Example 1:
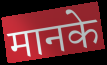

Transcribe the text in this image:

मानके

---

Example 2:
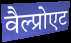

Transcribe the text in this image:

वैल्प्रोएट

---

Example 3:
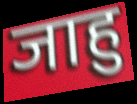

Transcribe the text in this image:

जाहु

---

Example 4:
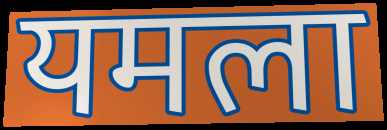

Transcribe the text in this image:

यमला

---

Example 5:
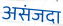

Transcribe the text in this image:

असंजदा